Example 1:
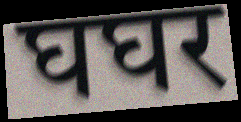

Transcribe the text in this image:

घघर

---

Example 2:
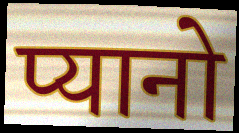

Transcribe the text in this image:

प्यानो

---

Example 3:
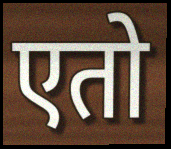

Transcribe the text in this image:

एतो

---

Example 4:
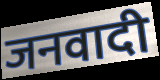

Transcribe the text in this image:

जनवादी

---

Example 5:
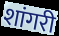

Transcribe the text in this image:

शांगरी